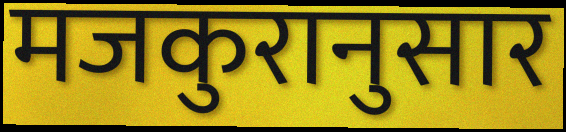
मजकुरानुसार